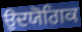
ਉਦਯੋਗਿਕ